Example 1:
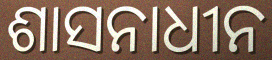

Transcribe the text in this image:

ଶାସନାଧୀନ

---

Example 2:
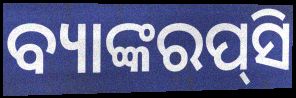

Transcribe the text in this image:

ବ୍ୟାଙ୍କରପ୍‌ସି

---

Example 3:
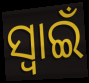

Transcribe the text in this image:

ସ୍ଵାଇଁ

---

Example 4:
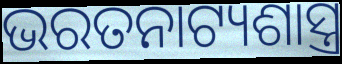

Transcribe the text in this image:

ଭରତନାଟ୍ୟଶାସ୍ତ୍ର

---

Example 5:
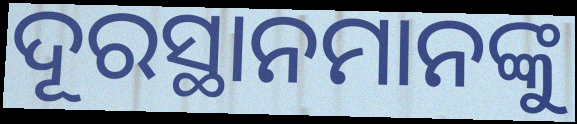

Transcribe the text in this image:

ଦୂରସ୍ଥାନମାନଙ୍କୁ